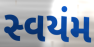
સ્વયંમ